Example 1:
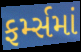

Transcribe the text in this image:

ફર્મ્સમાં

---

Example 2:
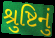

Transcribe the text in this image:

શ્રુષ્ટિનું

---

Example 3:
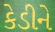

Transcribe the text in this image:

કેડીને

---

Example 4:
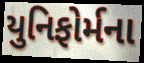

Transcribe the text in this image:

યુનિફોર્મના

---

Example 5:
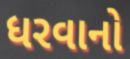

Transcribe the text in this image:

ધરવાનો